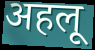
अहलू